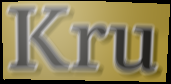
Kru